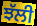
ਝੱਲੀ